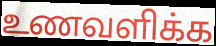
உணவளிக்க